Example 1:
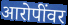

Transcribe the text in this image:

आरोपींवर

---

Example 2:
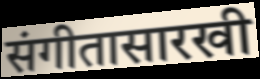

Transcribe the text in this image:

संगीतासारखी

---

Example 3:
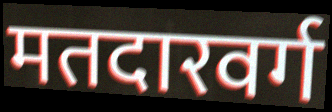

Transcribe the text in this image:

मतदारवर्ग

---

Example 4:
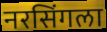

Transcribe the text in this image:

नरसिंगला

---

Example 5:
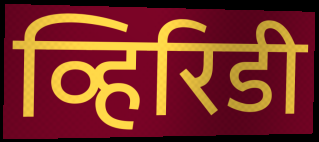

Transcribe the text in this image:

व्हिरिडी